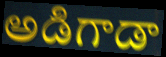
అడిగాడా